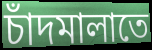
চাঁদমালাতে